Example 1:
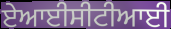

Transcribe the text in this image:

ਏਆਈਸੀਟੀਆਈ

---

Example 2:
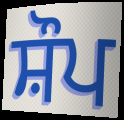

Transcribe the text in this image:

ਸ਼ੌਪ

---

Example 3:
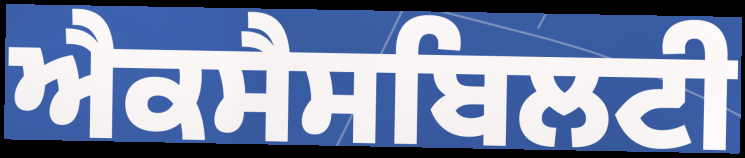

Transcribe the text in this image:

ਐਕਸੈਸਬਿਲਟੀ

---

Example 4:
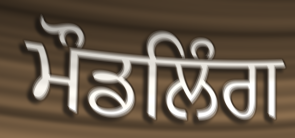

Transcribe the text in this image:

ਮੌਡਲਿੰਗ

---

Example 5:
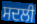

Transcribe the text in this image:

ਸਦਲੀ